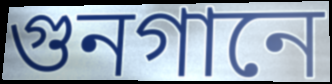
গুনগানে